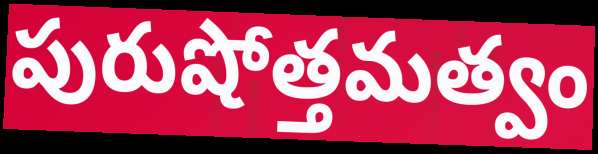
పురుషోత్తమత్వం